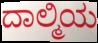
ದಾಲ್ಮಿಯ